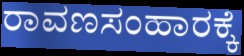
ರಾವಣಸಂಹಾರಕ್ಕೆ